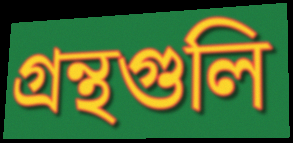
গ্রন্থগুলি